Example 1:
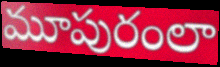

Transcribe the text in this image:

మూపురంలా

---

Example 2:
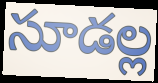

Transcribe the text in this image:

సూడల్ల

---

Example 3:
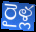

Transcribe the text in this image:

రైళ్ల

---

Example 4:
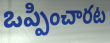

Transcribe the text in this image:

ఒప్పించారట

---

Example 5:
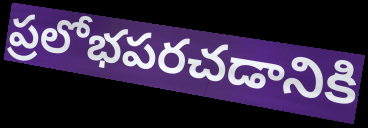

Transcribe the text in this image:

ప్రలోభపరచడానికి